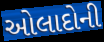
ઓલાદોની